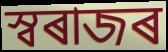
স্বৰাজৰ